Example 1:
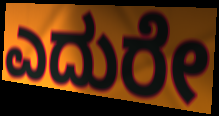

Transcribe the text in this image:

ಎದುರೇ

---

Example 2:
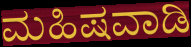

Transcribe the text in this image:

ಮಹಿಷವಾಡಿ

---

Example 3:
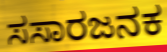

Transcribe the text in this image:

ಸಸಾರಜನಕ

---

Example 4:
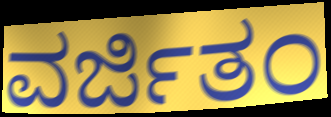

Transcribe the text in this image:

ವರ್ಜಿತಂ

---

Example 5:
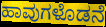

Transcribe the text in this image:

ಹಾವುಗಳೊಡನೆ